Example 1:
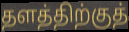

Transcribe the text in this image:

தளத்திற்குத்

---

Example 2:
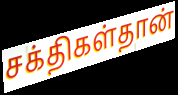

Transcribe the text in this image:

சக்திகள்தான்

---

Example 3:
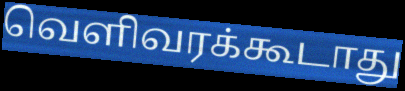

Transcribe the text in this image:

வெளிவரக்கூடாது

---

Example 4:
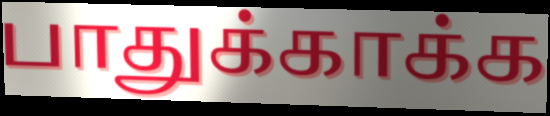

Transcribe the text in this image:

பாதுக்காக்க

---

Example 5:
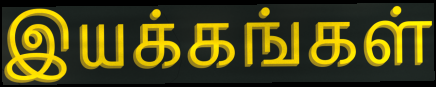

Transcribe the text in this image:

இயக்கங்கள்